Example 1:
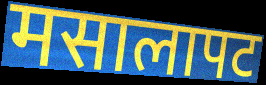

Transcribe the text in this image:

मसालापट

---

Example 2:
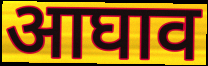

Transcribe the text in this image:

आघाव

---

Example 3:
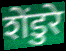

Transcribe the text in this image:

शेंडुरे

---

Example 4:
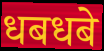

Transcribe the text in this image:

धबधबे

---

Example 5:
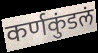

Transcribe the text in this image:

कर्णकुंडलं